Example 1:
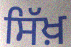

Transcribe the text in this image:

ਸਿੱਖ਼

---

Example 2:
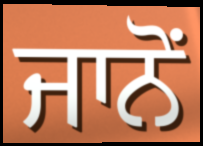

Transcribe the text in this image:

ਜਾਨੋਂ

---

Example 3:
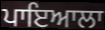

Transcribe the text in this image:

ਪਾਇਆਲਾ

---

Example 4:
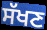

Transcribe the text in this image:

ਸੱਖਣ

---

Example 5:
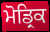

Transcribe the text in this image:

ਮੋਡ੍ਰਿਕ